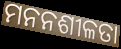
ମନନଶୀଳତା